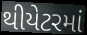
થીયેટરમાં